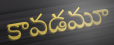
కావడమూ